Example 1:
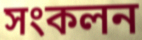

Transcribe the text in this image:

সংকলন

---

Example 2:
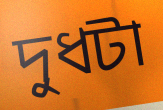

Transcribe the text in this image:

দুধটা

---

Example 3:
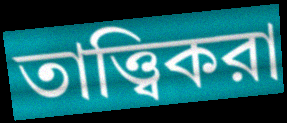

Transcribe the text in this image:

তাত্ত্বিকরা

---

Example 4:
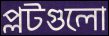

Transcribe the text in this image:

প্লটগুলো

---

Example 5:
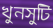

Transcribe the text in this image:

খুনসুটি